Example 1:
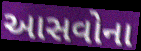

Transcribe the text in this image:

આસવોના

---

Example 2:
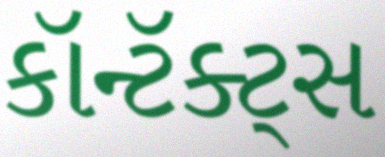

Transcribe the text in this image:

કૉન્ટૅક્ટ્સ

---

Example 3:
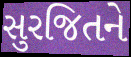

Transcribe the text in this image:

સુરજિતને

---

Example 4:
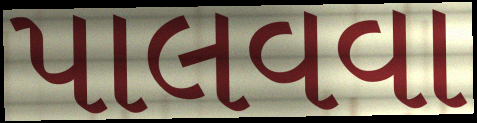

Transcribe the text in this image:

પાલવવા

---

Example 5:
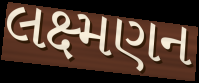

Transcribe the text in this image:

લક્ષ્મણન